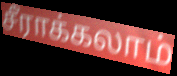
சீராக்கலாம்